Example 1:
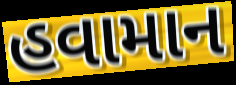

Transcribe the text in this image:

હવામાન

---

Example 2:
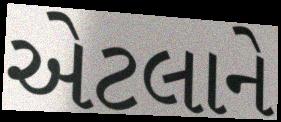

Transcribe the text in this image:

એટલાને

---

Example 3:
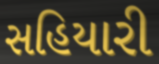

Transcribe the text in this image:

સહિયારી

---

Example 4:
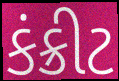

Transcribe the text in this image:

કંક્રીટ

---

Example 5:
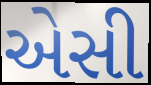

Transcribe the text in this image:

એસી